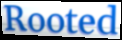
Rooted